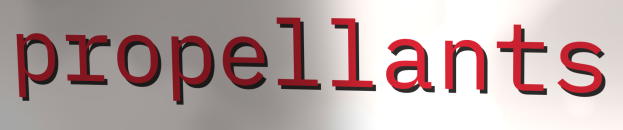
propellants